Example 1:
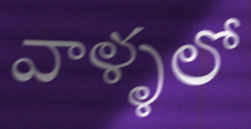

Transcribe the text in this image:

వాళ్ళలో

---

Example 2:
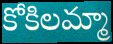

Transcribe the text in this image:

కోకిలమ్మా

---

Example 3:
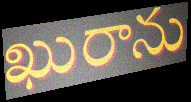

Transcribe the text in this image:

ఖురాను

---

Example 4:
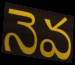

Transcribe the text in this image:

నెవ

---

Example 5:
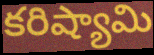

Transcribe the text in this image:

కరిష్యామి